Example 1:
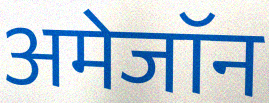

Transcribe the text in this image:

अमेजॉन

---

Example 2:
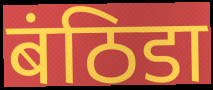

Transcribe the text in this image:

बंठिडा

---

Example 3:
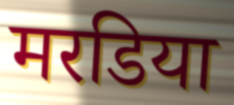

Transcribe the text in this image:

मरडिया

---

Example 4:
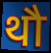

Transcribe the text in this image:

थौ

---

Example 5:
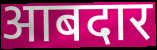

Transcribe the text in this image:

आबदार